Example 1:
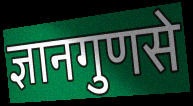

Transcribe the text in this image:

ज्ञानगुणसे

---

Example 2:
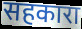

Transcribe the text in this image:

सहकारा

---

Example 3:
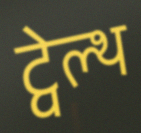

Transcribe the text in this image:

ट्वेल्थ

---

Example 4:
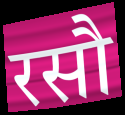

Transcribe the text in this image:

रसौ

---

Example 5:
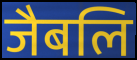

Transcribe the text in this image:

जैबलि